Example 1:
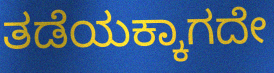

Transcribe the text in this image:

ತಡೆಯಕ್ಕಾಗದೇ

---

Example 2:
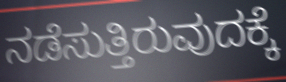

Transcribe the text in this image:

ನಡೆಸುತ್ತಿರುವುದಕ್ಕೆ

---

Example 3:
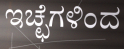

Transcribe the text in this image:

ಇಚ್ಛೆಗಳಿಂದ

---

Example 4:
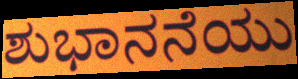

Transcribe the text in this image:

ಶುಭಾನನೆಯು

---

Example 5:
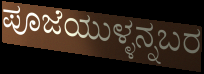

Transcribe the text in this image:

ಪೂಜೆಯುಳ್ಳನ್ನಬರ